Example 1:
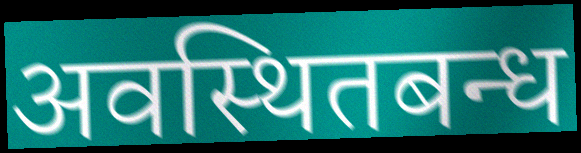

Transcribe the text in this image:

अवस्थितबन्ध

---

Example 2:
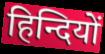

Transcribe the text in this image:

हिन्दियों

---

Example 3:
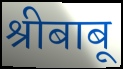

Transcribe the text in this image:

श्रीबाबू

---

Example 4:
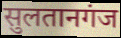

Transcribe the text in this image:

सुलतानगंज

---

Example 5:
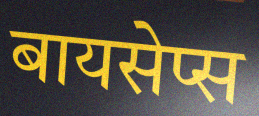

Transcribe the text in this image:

बायसेप्स